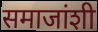
समाजांशी